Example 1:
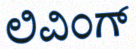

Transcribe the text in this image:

ಲಿವಿಂಗ್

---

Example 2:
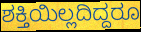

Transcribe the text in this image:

ಶಕ್ತಿಯಿಲ್ಲದಿದ್ದರೂ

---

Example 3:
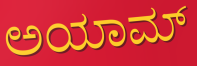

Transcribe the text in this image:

ಅಯಾಮ್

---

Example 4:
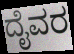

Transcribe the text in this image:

ದೈವರ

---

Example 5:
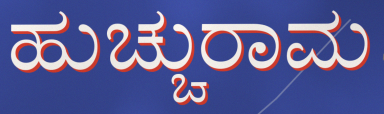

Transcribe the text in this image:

ಹುಚ್ಚುರಾಮ